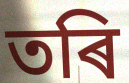
তৰি